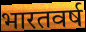
भारतवर्ष